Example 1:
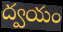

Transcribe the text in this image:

ద్వయం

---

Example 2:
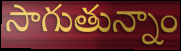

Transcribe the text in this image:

సాగుతున్నాం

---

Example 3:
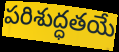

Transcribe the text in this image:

పరిశుద్ధతయే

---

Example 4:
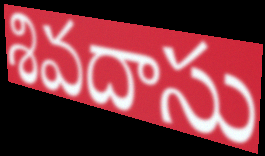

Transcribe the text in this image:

శివదాసు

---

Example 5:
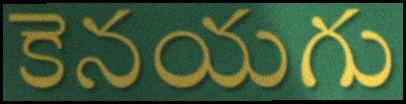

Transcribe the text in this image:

కెనయగు